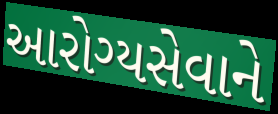
આરોગ્યસેવાને